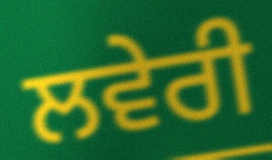
ਲਵੇਰੀ